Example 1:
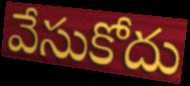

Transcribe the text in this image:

వేసుకోదు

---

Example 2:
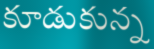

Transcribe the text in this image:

కూడుకున్న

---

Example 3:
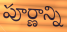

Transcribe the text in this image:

పూర్ణాన్ని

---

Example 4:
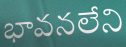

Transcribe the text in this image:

భావనలేని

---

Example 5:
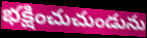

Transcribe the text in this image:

భక్షించుచుండును